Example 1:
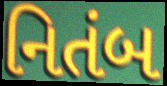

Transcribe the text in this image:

નિતંબ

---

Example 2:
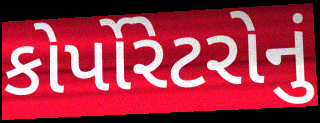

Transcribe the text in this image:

કોર્પોરેટરોનું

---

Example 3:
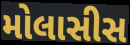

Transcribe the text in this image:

મોલાસીસ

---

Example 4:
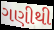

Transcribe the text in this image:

ગણીથી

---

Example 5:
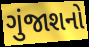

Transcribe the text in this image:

ગુંજાશનો